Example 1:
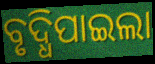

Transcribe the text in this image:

ବୃଦ୍ଧିପାଇଲା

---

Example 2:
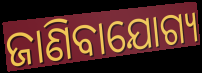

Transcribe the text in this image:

ଜାଣିବାଯୋଗ୍ୟ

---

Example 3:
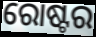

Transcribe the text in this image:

ରୋଷ୍ଟର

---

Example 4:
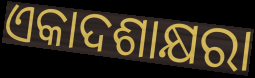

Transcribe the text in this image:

ଏକାଦଶାକ୍ଷରା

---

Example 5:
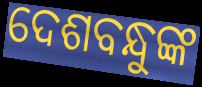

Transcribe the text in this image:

ଦେଶବନ୍ଧୁଙ୍କ